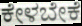
ಕೇಳಬೇಕೆ